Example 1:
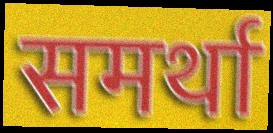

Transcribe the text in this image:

समर्था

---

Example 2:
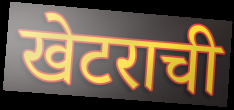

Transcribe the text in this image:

खेटराची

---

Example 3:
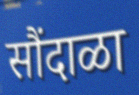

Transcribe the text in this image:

सौंदाळा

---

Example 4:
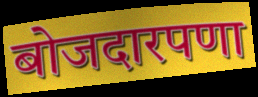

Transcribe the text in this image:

बोजदारपणा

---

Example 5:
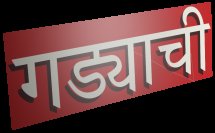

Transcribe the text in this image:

गड्याची